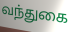
வந்துகை